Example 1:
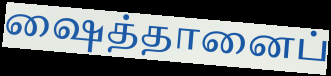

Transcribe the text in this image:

ஷைத்தானைப்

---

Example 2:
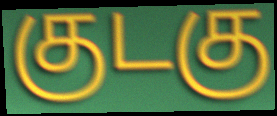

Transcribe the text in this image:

குடகு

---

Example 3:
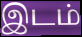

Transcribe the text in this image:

இடம்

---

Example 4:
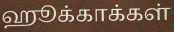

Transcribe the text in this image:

ஹூக்காக்கள்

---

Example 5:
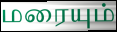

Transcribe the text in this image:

மரையும்